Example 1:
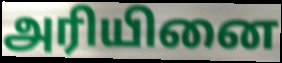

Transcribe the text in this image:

அரியினை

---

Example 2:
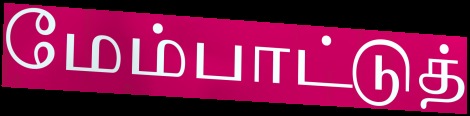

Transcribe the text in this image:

மேம்பாட்டுத்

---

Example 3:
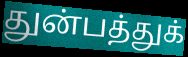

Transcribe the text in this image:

துன்பத்துக்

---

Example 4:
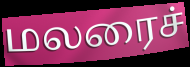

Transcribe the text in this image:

மலரைச்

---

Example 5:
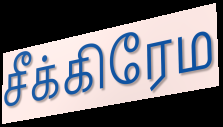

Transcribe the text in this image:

சீக்கிரேம